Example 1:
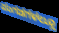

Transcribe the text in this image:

ಪಂಗಡಗಳಲ್ಲೂ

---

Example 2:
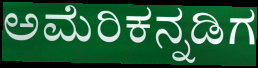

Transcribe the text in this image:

ಅಮೆರಿಕನ್ನಡಿಗ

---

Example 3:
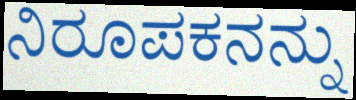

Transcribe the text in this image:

ನಿರೂಪಕನನ್ನು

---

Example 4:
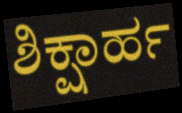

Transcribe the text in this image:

ಶಿಕ್ಷಾರ್ಹ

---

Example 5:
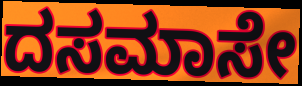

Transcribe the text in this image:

ದಸಮಾಸೇ